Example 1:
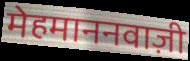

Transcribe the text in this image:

मेहमाननवाज़ी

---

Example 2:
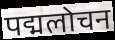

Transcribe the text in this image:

पद्मलोचन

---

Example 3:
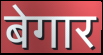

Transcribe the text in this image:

बेगार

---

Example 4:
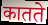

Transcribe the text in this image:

कातते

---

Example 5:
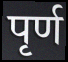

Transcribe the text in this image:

पृर्ण